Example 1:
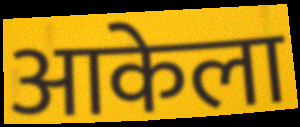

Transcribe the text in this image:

आकेला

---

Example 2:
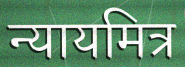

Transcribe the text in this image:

न्यायमित्र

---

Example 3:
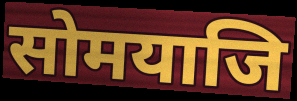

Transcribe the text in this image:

सोमयाजि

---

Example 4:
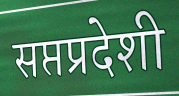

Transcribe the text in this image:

सप्तप्रदेशी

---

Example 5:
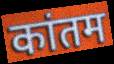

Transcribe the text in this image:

कांतम